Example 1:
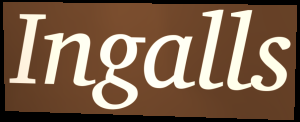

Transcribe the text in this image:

Ingalls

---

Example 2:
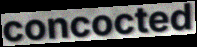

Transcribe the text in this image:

concocted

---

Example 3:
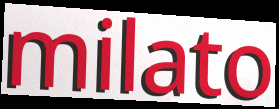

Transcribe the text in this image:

milato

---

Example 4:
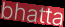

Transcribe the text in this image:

bhatta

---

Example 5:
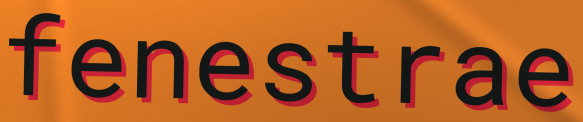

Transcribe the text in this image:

fenestrae